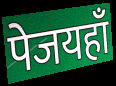
पेजयहाँ